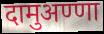
दामुअण्णा